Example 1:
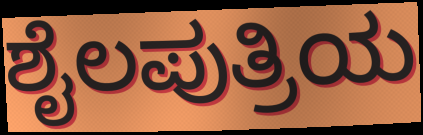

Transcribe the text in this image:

ಶೈಲಪುತ್ರಿಯ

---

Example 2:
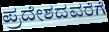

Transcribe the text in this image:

ಪ್ರದೇಶದವರೆಗೆ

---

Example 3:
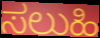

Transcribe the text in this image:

ಸಲುಹಿ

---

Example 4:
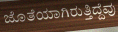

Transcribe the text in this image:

ಜೊತೆಯಾಗಿರುತ್ತಿದ್ದೆವು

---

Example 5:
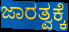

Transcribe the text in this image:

ಜಾರತ್ವಕ್ಕೆ